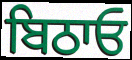
ਬਿਠਾਓ